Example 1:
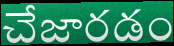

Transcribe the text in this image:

చేజారడం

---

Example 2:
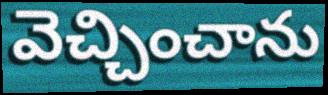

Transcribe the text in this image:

వెచ్చించాను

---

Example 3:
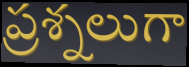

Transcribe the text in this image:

ప్రశ్నలుగా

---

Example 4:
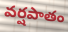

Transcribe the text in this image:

వర్షపాతం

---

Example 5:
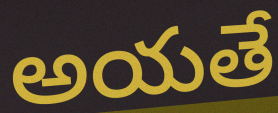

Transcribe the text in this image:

అయతే